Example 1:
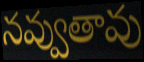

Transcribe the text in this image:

నవ్వుతావు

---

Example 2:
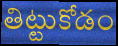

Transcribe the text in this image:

తిట్టుకోడం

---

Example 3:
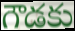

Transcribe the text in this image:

గౌడకు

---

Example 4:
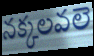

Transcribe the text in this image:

నక్కలవలె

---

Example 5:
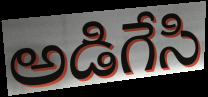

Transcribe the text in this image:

అడిగేసి